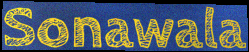
Sonawala